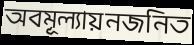
অবমূল্যায়নজনিত